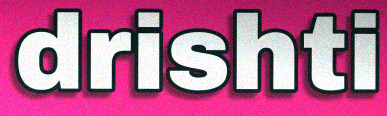
drishti